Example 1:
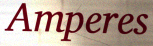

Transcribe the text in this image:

Amperes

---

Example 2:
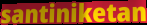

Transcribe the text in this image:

santiniketan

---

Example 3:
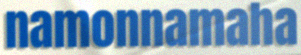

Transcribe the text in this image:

namonnamaha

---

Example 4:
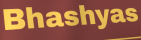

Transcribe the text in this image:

Bhashyas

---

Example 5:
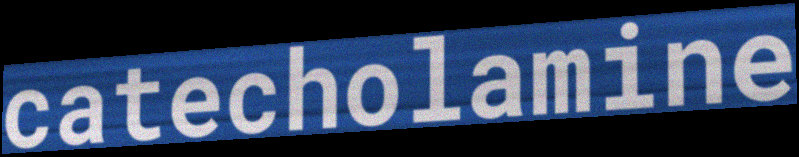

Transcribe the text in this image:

catecholamine